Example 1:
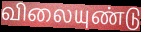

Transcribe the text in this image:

விலையுண்டு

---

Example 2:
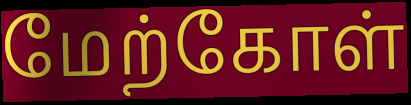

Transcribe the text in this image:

மேற்கோள்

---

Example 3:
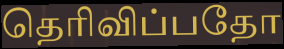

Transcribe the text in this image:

தெரிவிப்பதோ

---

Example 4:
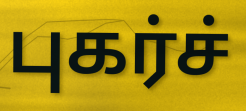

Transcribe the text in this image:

புகர்ச்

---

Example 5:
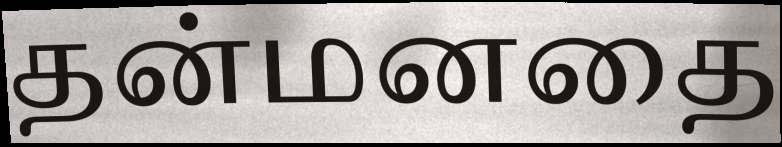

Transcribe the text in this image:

தன்மனதை